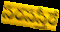
సరసస్తీరే